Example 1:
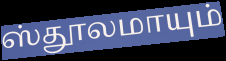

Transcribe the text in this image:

ஸ்தூலமாயும்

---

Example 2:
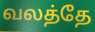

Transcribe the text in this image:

வலத்தே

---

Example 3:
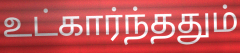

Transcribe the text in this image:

உட்கார்ந்ததும்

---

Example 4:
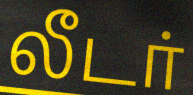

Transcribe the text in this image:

லீடர்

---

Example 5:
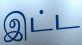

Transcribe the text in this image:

இட்ட